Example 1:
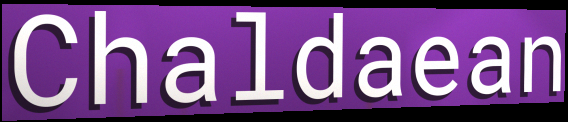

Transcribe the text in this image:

Chaldaean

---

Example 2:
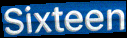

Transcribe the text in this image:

Sixteen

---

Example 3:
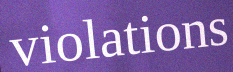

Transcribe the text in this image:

violations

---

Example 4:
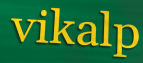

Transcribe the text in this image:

vikalp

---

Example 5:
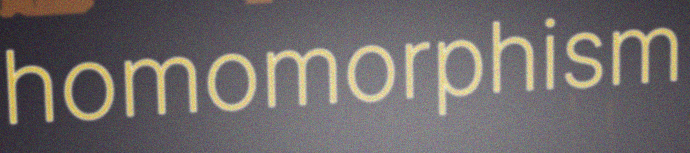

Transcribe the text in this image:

homomorphism